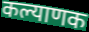
कल्याणक